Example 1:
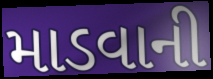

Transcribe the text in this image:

માડવાની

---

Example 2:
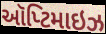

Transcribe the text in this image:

ઑપ્ટિમાઇઝ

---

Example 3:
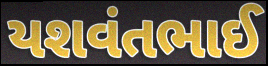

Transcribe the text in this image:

યશવંતભાઈ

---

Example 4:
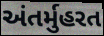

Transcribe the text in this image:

અંતર્મુહરત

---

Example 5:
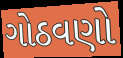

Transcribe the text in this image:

ગોઠવણો